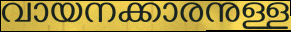
വായനക്കാരനുള്ള